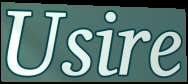
Usire